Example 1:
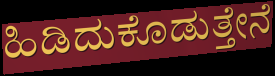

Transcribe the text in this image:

ಹಿಡಿದುಕೊಡುತ್ತೇನೆ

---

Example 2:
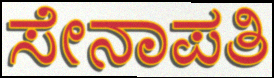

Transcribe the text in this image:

ಸೇನಾಪತಿ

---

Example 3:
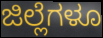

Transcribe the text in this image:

ಜಿಲ್ಲೆಗಳೂ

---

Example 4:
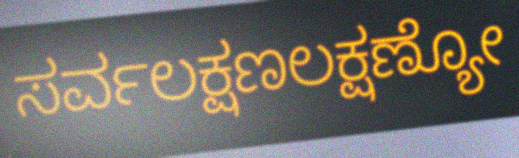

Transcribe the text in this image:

ಸರ್ವಲಕ್ಷಣಲಕ್ಷಣ್ಯೋ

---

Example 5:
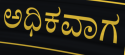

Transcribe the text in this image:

ಅಧಿಕವಾಗ